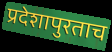
प्रदेशापुरताच